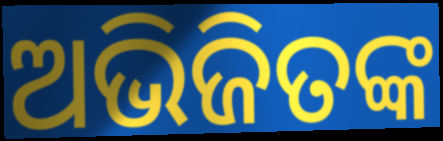
ଅଭିଜିତଙ୍କ